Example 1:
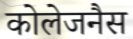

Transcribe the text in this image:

कोलेजनैस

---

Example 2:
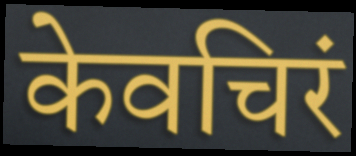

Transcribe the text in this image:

केवचिरं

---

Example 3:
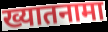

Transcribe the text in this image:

ख्यातनामा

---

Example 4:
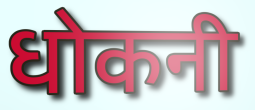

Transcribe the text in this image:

धोकनी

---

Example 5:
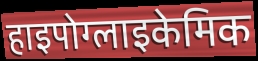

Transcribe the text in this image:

हाइपोग्लाइकेमिक